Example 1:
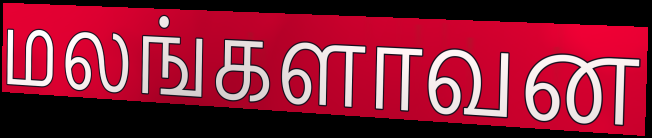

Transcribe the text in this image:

மலங்களாவன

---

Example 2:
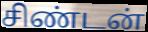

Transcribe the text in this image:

சிண்டன்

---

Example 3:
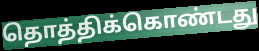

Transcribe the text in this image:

தொத்திக்கொண்டது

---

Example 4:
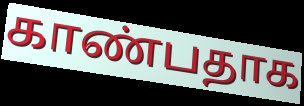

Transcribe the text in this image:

காண்பதாக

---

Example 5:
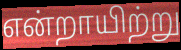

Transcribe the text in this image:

என்றாயிற்று